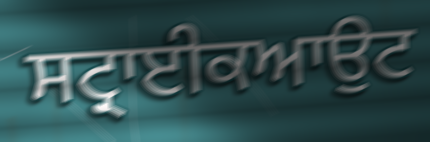
ਸਟ੍ਰਾਈਕਆਉਟ